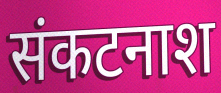
संकटनाश